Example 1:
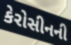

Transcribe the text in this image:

કેરોસીનની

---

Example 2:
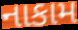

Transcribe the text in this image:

નાકામ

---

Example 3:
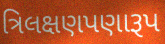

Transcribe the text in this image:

ત્રિલક્ષણપણારૂપ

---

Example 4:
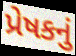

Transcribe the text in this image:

પ્રેષકનું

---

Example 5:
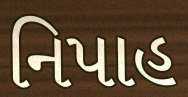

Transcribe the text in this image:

નિપાહ